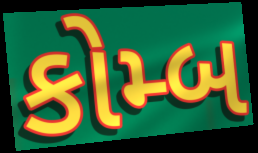
કોમ્બ